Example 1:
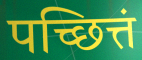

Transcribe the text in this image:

पच्छित्तं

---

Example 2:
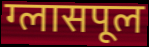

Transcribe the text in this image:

ग्लासपूल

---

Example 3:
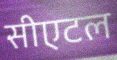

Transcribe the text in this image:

सीएटल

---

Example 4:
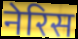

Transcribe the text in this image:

नेरिस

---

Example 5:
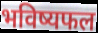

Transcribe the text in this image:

भविष्यफल